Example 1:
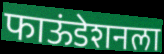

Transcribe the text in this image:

फाऊंडेशनला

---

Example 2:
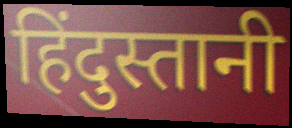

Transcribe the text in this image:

हिंदुस्तानी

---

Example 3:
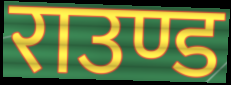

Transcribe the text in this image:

राउण्ड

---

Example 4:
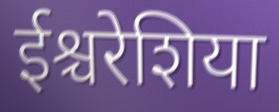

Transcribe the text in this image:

ईश्चरेशिया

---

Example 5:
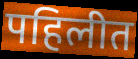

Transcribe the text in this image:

पहिलीत